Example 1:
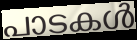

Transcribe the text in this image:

പാടകൾ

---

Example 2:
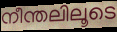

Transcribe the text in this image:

നീന്തലിലൂടെ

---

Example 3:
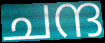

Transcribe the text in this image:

ചന്ദ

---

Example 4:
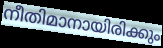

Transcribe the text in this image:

നീതിമാനായിരിക്കും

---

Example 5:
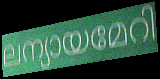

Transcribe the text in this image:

ലന്യായമേറി